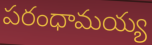
పరంధామయ్య